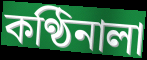
কণ্ঠিনালা